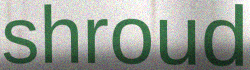
shroud